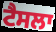
ਟੈਸਲਾ